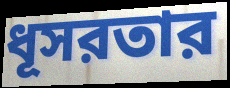
ধূসরতার